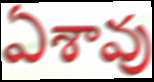
ఏశావు